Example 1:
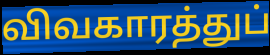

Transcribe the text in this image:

விவகாரத்துப்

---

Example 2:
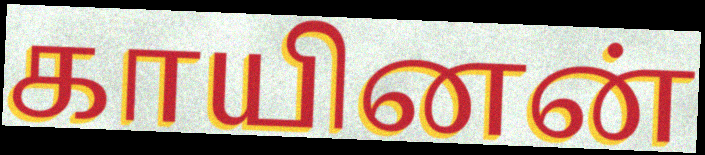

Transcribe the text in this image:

காயினன்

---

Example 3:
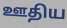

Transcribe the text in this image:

ஊதிய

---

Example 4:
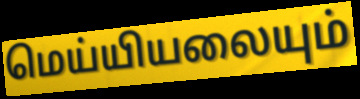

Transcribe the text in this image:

மெய்யியலையும்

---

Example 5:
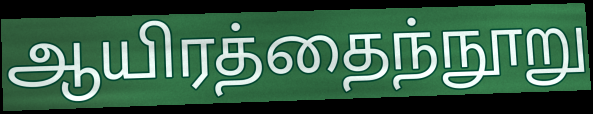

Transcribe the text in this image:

ஆயிரத்தைந்நூறு